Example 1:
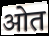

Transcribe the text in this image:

ओत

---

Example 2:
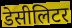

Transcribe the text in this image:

डेसीलिटर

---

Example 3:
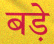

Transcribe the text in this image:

बड़े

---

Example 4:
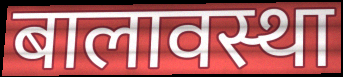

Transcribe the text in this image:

बालावस्था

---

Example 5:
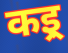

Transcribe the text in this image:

कइ्र